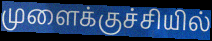
முளைக்குச்சியில்